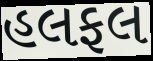
હલફલ